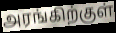
அரங்கிற்குள்